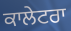
ਕਾਲੇਟਰਾ